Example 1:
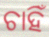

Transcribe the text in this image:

ଚାହିଁ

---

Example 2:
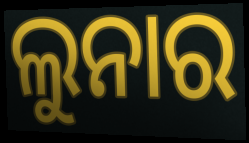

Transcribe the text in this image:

ଲୁନାର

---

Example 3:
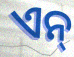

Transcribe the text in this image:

ଏନ୍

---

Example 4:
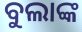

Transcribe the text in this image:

ବୁଲାଙ୍କ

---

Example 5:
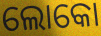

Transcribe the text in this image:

ଲୋକୋ